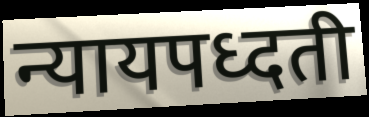
न्यायपध्दती